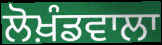
ਲੋਖ਼ੰਡਵਾਲਾ